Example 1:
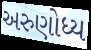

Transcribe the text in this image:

અરુણોધ્ય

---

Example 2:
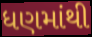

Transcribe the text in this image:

ધણમાંથી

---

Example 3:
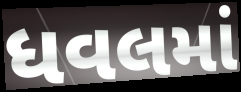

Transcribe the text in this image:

ધવલમાં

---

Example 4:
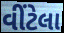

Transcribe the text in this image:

વીંટેલા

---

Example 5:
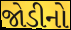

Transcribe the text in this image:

જોડીનો